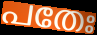
പതേഃ